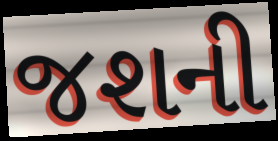
જશની